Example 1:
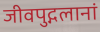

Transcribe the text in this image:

जीवपुद्गलानां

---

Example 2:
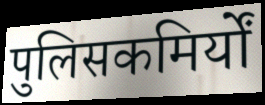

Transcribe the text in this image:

पुलिसकमिर्यों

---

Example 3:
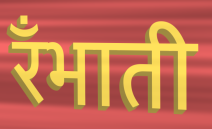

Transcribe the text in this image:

रँभाती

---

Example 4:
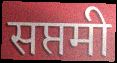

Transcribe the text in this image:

सप्तमी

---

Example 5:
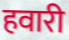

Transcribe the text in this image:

हवारी